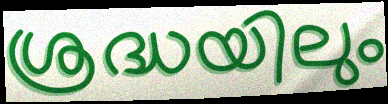
ശ്രദ്ധയിലും